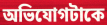
অভিযোগটাকে